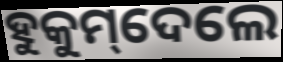
ହୁକୁମ୍‌ଦେଲେ